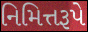
નિમિત્તરૂપે